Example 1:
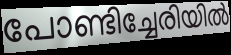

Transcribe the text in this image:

പോണ്ടിച്ചേരിയിൽ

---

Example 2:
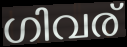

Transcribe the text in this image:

ഗിവര്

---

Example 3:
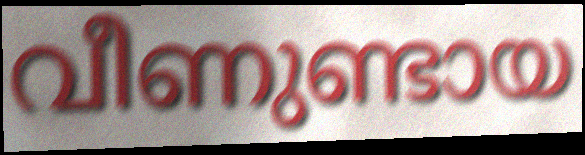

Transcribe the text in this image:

വീണുണ്ടായ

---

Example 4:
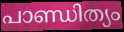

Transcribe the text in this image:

പാണ്ഡിത്യം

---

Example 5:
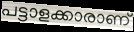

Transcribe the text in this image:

പട്ടാളക്കാരാണ്